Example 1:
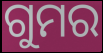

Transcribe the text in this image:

ଗୁମର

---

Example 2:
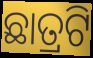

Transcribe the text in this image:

ଛାତ୍ରଟି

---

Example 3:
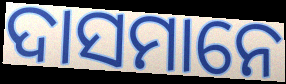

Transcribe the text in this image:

ଦାସମାନେ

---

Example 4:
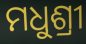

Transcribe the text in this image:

ମଧୁଶ୍ରୀ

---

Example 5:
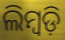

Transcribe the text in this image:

ଲିମ୍ବଡ଼ି